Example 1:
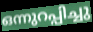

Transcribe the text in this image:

ഒന്നുറപ്പിച്ചു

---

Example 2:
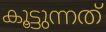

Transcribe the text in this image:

കൂട്ടുന്നത്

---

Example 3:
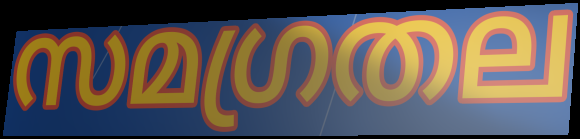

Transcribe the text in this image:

സമഗ്രതല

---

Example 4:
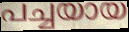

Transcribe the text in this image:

പച്ചയായ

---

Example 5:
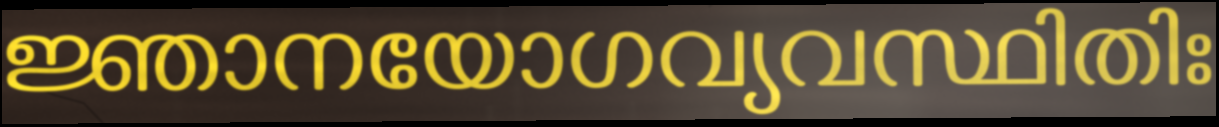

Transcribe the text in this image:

ജ്ഞാനയോഗവ്യവസ്ഥിതിഃ